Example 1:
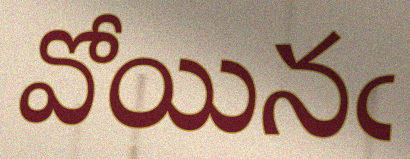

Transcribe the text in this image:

వోయినఁ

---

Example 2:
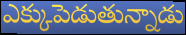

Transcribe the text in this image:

ఎక్కుపెడుతున్నాడు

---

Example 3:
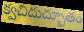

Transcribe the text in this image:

క్వచిదుద్భూతం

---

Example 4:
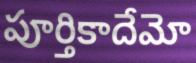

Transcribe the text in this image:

పూర్తికాదేమో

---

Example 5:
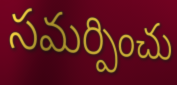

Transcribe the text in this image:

సమర్పించు